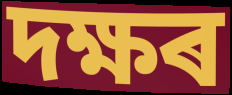
দক্ষৰ